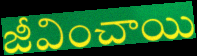
జీవించాయి